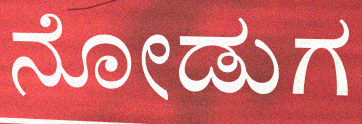
ನೋಡುಗ